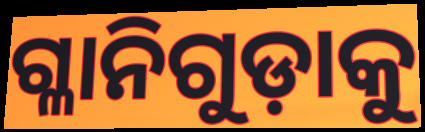
ଗ୍ଳାନିଗୁଡ଼ାକୁ